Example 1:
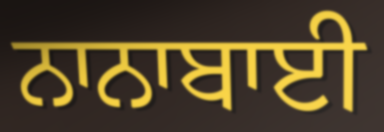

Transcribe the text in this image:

ਨਾਨਾਬਾਈ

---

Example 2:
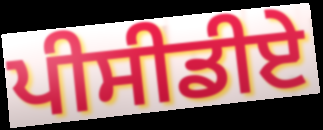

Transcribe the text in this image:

ਪੀਸੀਡੀਏ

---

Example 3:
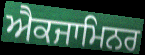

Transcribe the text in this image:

ਐਕਜਾਮਿਨਰ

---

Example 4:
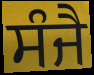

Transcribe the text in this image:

ਸੰਜੈ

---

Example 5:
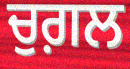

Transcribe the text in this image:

ਚੁਗ਼ਲ